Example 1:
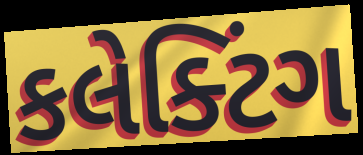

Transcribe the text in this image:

કલેક્ટિંગ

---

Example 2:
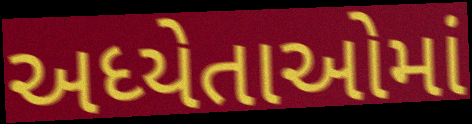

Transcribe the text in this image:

અધ્યેતાઓમાં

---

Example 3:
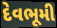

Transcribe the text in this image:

દેવભૂમી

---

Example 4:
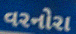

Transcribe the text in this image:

વરનોરા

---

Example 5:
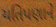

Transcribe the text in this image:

યતિપણાને